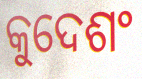
କୁଦେଶଂ